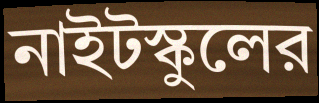
নাইটস্কুলের